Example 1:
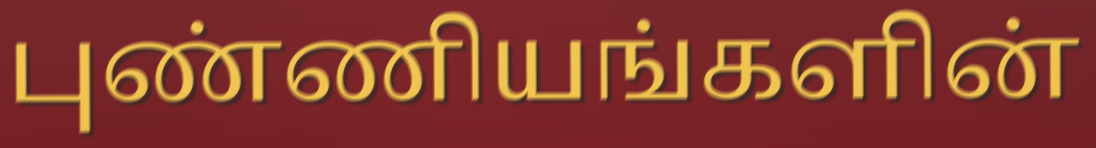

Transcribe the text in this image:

புண்ணியங்களின்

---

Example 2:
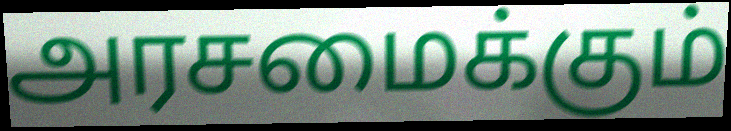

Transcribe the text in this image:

அரசமைக்கும்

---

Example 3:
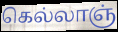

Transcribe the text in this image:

கெல்லாஞ்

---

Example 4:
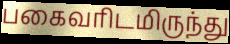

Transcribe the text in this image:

பகைவரிடமிருந்து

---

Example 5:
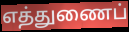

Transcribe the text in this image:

எத்துணைப்